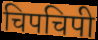
चिपचिपी